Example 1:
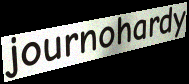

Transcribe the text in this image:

journohardy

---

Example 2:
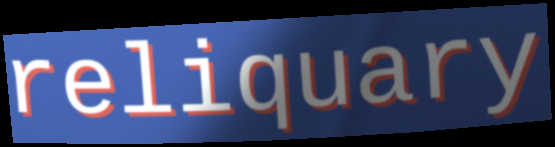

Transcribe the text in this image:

reliquary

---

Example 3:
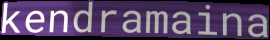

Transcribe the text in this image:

kendramaina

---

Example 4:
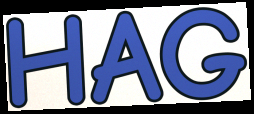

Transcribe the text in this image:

HAG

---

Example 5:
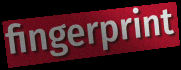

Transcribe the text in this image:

fingerprint